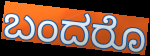
ಬಂದರೊ